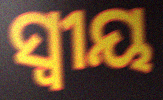
ସ୍ବୀୟ